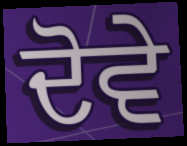
ਦੋਵੇ